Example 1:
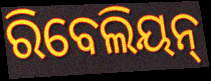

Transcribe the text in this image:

ରିବେଲିୟନ୍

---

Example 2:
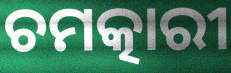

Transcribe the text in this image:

ଚମତ୍କାରୀ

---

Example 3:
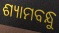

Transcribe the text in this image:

ଶ୍ୟାମବନ୍ଧୁ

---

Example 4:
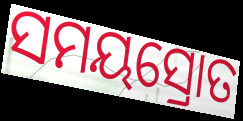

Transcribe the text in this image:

ସମୟସ୍ରୋତ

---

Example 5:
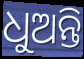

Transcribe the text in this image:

ଧୁଅନ୍ତି